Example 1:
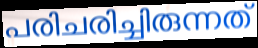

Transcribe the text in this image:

പരിചരിച്ചിരുന്നത്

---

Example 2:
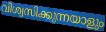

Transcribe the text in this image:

വിശ്വസിക്കുന്നയാളും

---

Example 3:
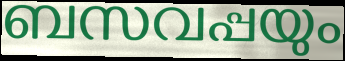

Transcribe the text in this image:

ബസവപ്പയും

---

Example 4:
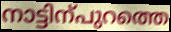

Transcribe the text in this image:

നാട്ടിന്പുറത്തെ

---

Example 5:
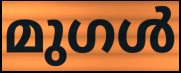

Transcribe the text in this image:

മുഗൾ